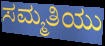
ಸಮ್ಮತಿಯು